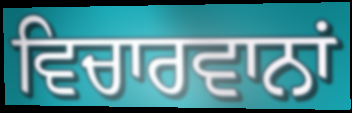
ਵਿਚਾਰਵਾਨਾਂ